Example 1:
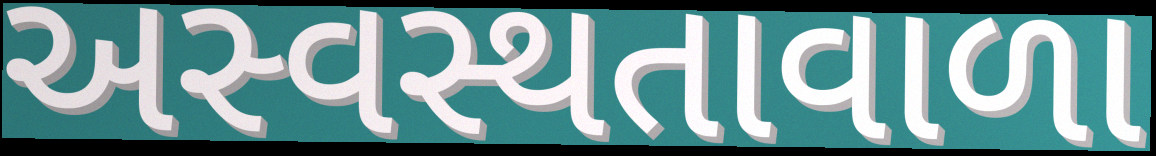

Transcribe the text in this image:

અસ્વસ્થતાવાળા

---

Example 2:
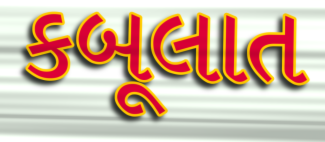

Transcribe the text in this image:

કબૂલાત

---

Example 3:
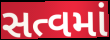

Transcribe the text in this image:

સત્વમાં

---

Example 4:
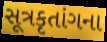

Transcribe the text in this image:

સૂત્રકૃતાંગના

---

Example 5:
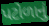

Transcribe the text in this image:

પટોળાનું